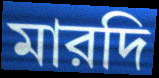
মারদি